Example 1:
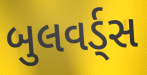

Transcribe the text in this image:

બુલવર્ડ્સ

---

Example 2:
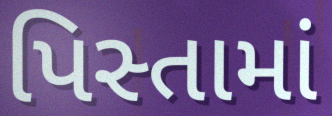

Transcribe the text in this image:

પિસ્તામાં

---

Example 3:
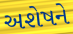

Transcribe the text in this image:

અશેષને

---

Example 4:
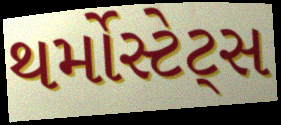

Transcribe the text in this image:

થર્મોસ્ટેટ્સ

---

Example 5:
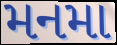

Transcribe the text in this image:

મનમા